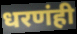
धरणंही